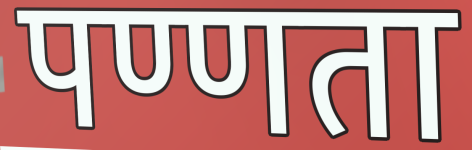
पण्णता